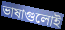
ভাষাগুলোই